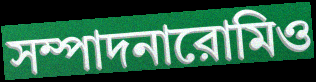
সম্পাদনারোমিও